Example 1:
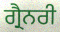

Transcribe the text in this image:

ਗ੍ਰੈਨਰੀ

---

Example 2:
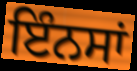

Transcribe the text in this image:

ਇੰਨਸਾਂ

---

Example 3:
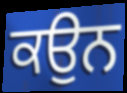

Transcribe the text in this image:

ਕਉਨ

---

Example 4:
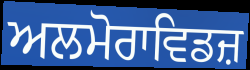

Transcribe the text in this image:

ਅਲਮੋਰਾਵਿਡਜ਼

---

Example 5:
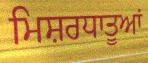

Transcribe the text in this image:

ਮਿਸ਼ਰਧਾਤੂਆਂ